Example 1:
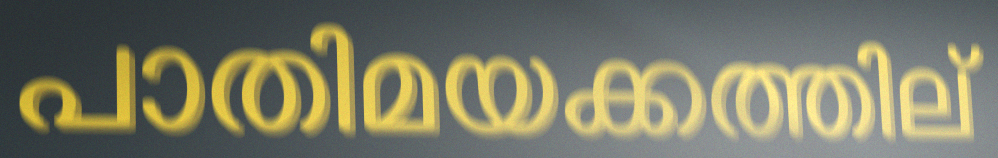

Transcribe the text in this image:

പാതിമയക്കത്തില്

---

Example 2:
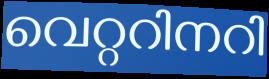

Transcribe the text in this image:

വെറ്ററിനറി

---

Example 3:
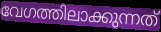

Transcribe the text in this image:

വേഗത്തിലാക്കുന്നത്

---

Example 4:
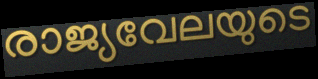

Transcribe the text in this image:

രാജ്യവേലയുടെ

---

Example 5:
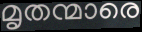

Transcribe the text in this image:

മൃതന്മാരെ